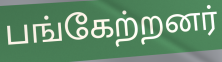
பங்கேற்றனர்